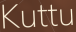
Kuttu